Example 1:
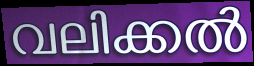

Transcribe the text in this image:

വലിക്കൽ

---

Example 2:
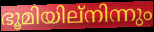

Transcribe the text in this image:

ഭൂമിയില്നിന്നും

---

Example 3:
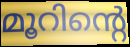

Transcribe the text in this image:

മൂറിന്റെ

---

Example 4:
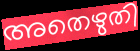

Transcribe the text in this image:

അതെഴുതി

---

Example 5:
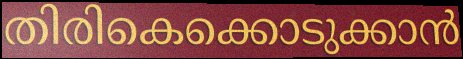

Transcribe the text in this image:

തിരികെക്കൊടുക്കാൻ